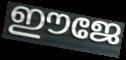
ഈജേ